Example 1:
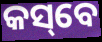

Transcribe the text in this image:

କସ୍‌ବେ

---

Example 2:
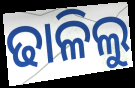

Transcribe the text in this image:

ଢାଳିଲୁ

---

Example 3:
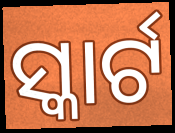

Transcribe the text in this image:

ସ୍କାର୍ଟ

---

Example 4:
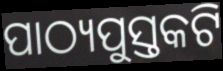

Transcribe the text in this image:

ପାଠ୍ୟପୁସ୍ତକଟି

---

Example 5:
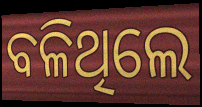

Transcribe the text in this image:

ବଳିଥିଲେ